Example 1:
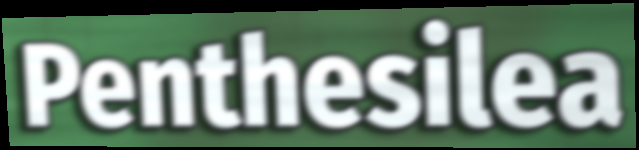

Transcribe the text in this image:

Penthesilea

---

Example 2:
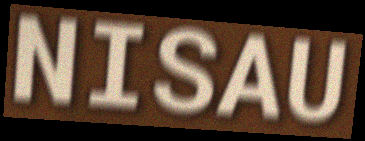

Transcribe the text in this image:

NISAU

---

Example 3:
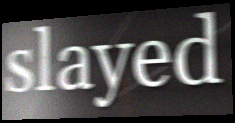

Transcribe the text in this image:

slayed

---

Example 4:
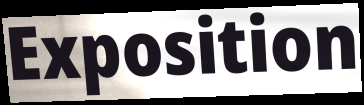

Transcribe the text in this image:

Exposition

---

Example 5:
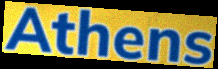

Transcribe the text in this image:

Athens